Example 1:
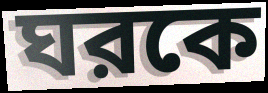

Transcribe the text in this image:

ঘরকে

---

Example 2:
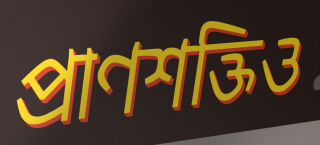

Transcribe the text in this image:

প্রাণশক্তিও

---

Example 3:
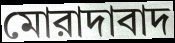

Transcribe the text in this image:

মোরাদাবাদ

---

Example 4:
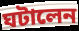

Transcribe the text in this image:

ঘটালেন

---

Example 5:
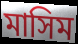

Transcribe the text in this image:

মাসিম